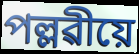
পল্লৱীয়ে